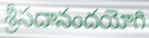
శ్రీసదానందయోగి